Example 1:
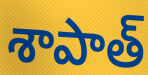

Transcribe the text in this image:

శాపాత్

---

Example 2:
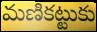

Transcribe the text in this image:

మణికట్టుకు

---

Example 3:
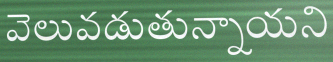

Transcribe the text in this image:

వెలువడుతున్నాయని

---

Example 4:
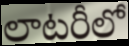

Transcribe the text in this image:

లాటరీలో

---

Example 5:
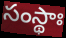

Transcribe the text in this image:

సంస్థాః